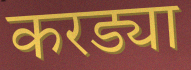
करड्या